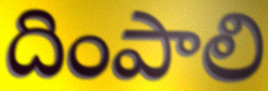
దింపాలి